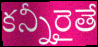
కన్నీరైతే